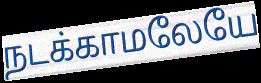
நடக்காமலேயே